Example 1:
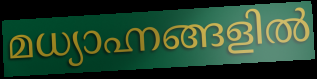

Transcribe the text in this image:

മധ്യാഹ്നങ്ങളിൽ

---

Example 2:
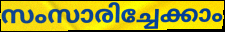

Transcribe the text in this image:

സംസാരിച്ചേക്കാം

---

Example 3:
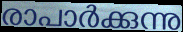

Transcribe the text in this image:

രാപാർക്കുന്നു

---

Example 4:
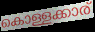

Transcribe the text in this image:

കൊള്ളക്കാര്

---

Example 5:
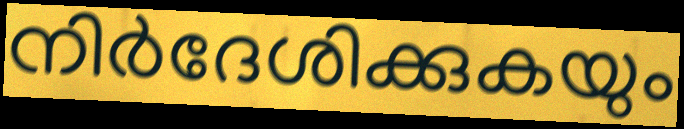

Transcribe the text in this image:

നിർദേശിക്കുകയും